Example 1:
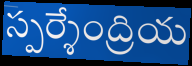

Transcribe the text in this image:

స్పర్శేంద్రియ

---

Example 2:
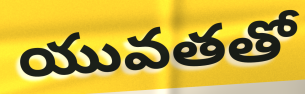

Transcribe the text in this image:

యువతతో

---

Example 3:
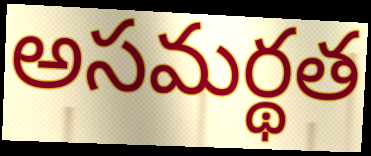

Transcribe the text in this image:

అసమర్థత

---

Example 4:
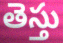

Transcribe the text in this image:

తెస్తు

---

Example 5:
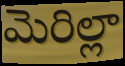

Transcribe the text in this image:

మెరిల్లా